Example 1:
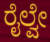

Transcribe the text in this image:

ರೈಲ್ವೇ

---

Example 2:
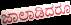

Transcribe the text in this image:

ಜಾಲಾಡಿದರೂ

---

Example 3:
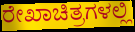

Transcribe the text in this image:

ರೇಖಾಚಿತ್ರಗಳಲ್ಲಿ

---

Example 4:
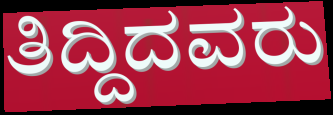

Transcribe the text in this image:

ತಿದ್ದಿದವರು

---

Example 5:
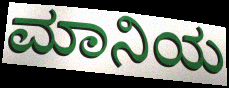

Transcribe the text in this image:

ಮಾನಿಯ